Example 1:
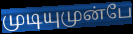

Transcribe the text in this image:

முடியுமுன்பே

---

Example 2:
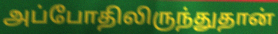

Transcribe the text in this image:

அப்போதிலிருந்துதான்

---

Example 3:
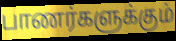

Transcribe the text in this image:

பாணர்களுக்கும்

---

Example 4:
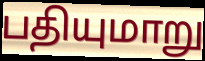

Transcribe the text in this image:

பதியுமாறு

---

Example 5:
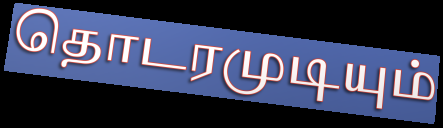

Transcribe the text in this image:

தொடரமுடியும்